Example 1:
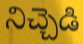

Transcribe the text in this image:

నిచ్చెడి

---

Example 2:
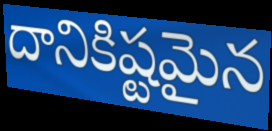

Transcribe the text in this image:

దానికిష్టమైన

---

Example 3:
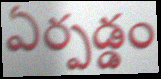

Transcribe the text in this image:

ఏర్పడ్డం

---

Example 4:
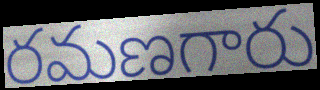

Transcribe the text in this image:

రమణగారు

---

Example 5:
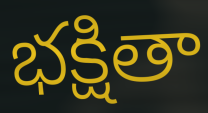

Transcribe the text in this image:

భక్షితా